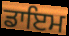
ਡਾਇਮ